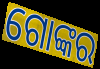
ଗୋଙ୍କର